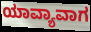
ಯಾವ್ಯಾವಾಗ